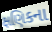
ક્ષણિકના